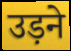
उड़ने